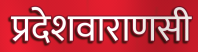
प्रदेशवाराणसी